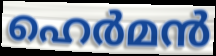
ഹെർമൻ